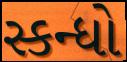
સ્કન્ધો